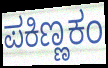
ಪಕಿಣ್ಣಕಂ